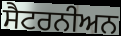
ਸੈਟਰਨੀਅਨ